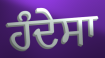
ਹੰਦੇਸਾ